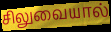
சிலுவையால்